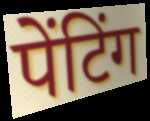
पेंटिंग